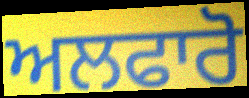
ਅਲਫਾਰੋ